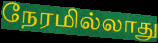
நேரமில்லாது